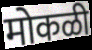
मोकळी